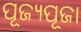
ପୂଜ୍ୟପୂଜା